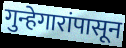
गुन्हेगारांपासून